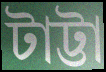
টাট্টা